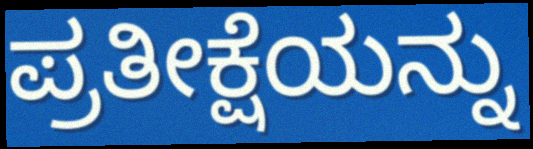
ಪ್ರತೀಕ್ಷೆಯನ್ನು